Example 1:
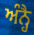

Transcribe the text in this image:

ਅੰਨ੍ਹੈ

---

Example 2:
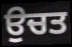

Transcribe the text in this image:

ਉਚਤ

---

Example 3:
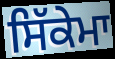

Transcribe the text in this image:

ਸਿੱਕੇਮਾ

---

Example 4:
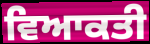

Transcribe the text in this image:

ਵਿਆਕਤੀ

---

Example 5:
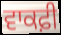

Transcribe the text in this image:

ਵਾਕਫ਼ੀ